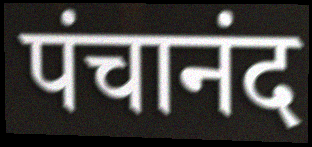
पंचानंद